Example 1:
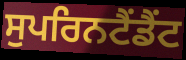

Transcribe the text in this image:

ਸੁਪਰਿਨਟੈਂਡੈਂਟ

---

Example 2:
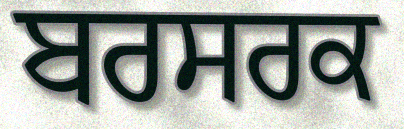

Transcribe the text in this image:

ਬਰਸਰਕ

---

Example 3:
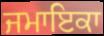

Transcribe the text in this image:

ਜਮਾਇਕਾ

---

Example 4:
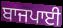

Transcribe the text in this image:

ਬਾਜਪਾਈ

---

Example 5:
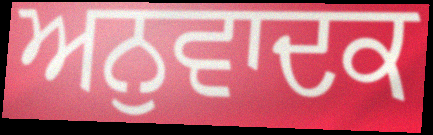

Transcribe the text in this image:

ਅਨੁਵਾਦਕ